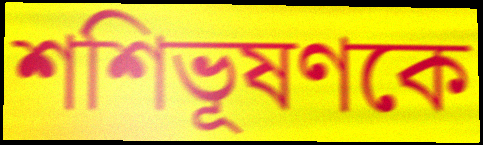
শশিভূষণকে